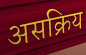
असक्रिय